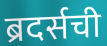
ब्रदर्सची